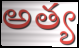
అత్య